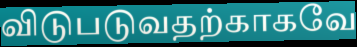
விடுபடுவதற்காகவே